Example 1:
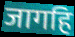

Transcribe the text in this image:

जागहि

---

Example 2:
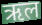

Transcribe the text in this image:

ऋल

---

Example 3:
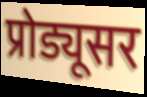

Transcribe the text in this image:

प्रोड्यूसर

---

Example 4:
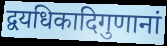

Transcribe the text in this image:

द्वयधिकादिगुणानां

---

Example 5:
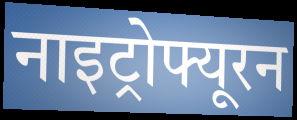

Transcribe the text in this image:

नाइट्रोफ्यूरन